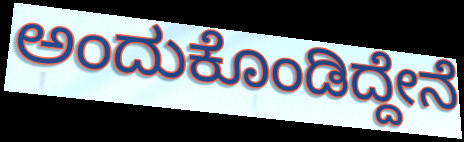
ಅಂದುಕೊಂಡಿದ್ದೇನೆ